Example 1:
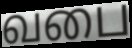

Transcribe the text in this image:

வபை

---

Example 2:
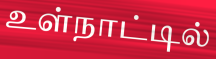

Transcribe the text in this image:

உள்நாட்டில்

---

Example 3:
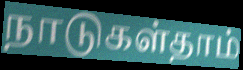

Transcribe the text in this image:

நாடுகள்தாம்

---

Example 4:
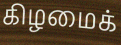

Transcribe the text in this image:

கிழமைக்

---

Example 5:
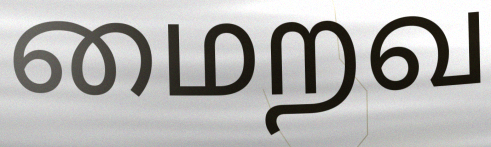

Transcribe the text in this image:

மைறவ